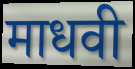
माधवी